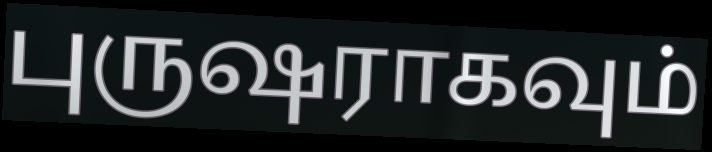
புருஷராகவும்